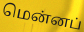
மென்னப்